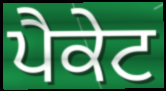
ਪੈਕੇਟ